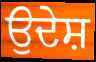
ਉਦੇਸ਼